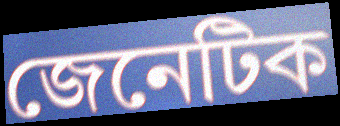
জেনেটিক